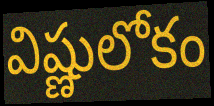
విష్ణులోకం